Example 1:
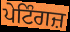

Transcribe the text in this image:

ਪੇਟਿੰਗਜ਼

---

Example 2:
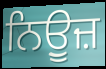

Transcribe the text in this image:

ਨਿਉੂਜ਼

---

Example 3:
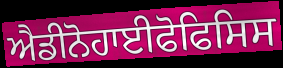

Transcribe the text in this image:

ਐਡੀਨੋਹਾਈਫੋਫਿਸਿਸ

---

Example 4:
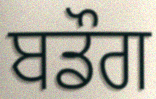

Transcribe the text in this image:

ਬਡੌਗ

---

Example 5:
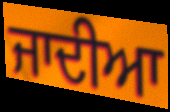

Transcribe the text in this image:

ਜਾਦੀਆ